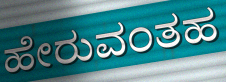
ಹೇರುವಂತಹ